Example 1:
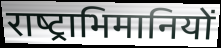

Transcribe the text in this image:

राष्ट्राभिमानियों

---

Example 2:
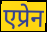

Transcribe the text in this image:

एप्रेन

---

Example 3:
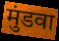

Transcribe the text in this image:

मुंडवा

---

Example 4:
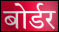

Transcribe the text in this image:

बोर्डर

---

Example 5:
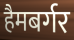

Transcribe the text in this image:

हैमबर्गर